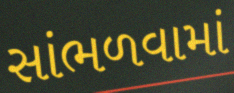
સાંભળવામાં